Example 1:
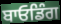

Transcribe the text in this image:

ਬਾਓਡਿੰਗ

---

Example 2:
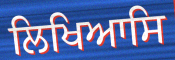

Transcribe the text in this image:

ਲਿਖਿਆਸਿ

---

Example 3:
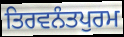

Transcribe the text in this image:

ਤਿਰਵਨੰਤਪੁਰਮ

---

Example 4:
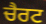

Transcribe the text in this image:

ਚੈਰਟ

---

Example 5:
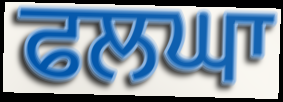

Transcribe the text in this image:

ਫਲਘਾ